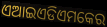
ଏଆଇଏଡିଏମକେର